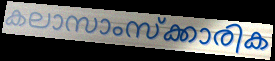
കലാസാംസ്ക്കാരിക